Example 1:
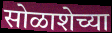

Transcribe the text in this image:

सोळाशेच्या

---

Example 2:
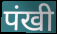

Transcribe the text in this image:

पंखी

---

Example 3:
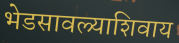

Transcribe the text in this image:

भेडसावल्याशिवाय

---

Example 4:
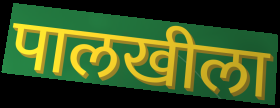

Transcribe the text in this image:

पालखीला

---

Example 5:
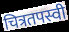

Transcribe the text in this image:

चित्रतपस्वी